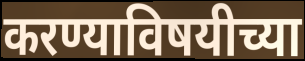
करण्याविषयीच्या